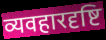
व्यवहारदृष्टि